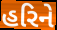
હરિને